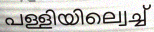
പള്ളിയില്വെച്ച്